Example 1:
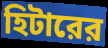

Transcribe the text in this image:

হিটারের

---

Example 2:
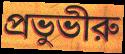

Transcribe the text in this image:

প্রভুভীরু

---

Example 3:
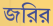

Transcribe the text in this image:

জরির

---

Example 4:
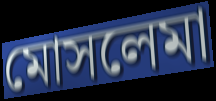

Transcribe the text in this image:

মোসলেমা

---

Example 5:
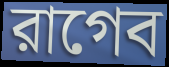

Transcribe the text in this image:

রাগেব